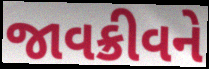
જાવક્રીવને